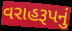
વરાહરૂપનું